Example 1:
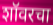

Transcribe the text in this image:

शॉवरचा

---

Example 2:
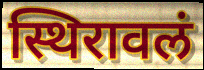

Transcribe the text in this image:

स्थिरावलं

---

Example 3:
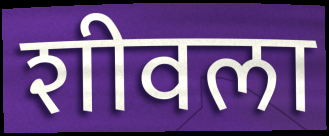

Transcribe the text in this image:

शीवला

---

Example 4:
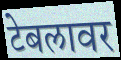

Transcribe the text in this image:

टेबलावर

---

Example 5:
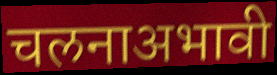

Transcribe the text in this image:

चलनाअभावी